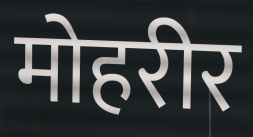
मोहरीर